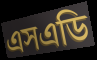
এসএডি